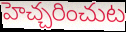
హెచ్చరించుట